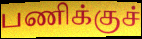
பணிக்குச்